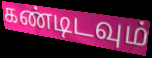
கண்டிடவும்